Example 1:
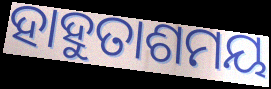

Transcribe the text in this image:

ହାହୁତାଶମୟ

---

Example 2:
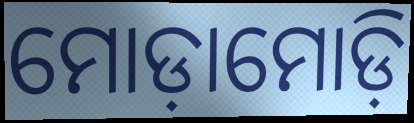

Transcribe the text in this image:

ମୋଡ଼ାମୋଡ଼ି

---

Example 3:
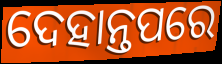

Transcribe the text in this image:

ଦେହାନ୍ତପରେ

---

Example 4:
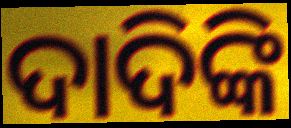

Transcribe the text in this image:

ଦାଦିଙ୍କି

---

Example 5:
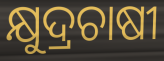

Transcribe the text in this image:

କ୍ଷୁଦ୍ରଚାଷୀ